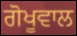
ਗੋਖੂਵਾਲ